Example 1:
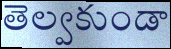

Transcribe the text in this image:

తెల్వకుండా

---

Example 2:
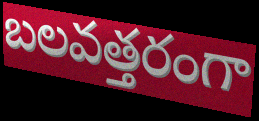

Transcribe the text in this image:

బలవత్తరంగా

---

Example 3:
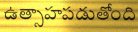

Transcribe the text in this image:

ఉత్సాహపడుతోంది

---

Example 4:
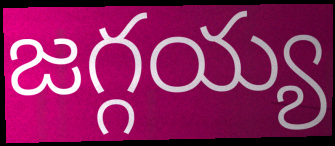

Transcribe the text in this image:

జగ్గయ్య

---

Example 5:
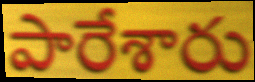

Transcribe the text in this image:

పారేశారు